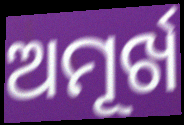
ଅମୂର୍ଖ